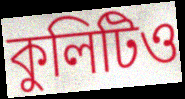
কুলিটিও